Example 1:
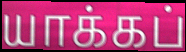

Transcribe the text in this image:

யாக்கப்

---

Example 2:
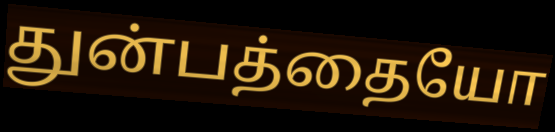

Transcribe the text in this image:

துன்பத்தையோ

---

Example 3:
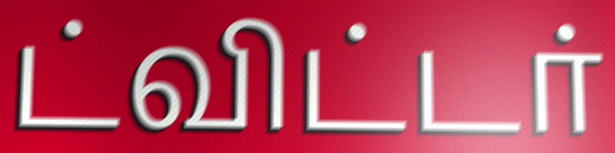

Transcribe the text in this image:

ட்விட்டர்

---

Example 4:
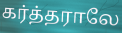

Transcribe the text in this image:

கர்த்தராலே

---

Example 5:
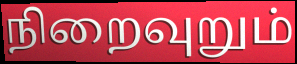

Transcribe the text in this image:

நிறைவுறும்